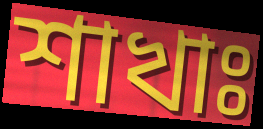
শাখাঃ